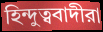
হিন্দুত্ববাদীরা